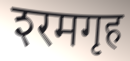
श्रमगृह